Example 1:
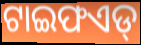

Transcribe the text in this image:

ଟାଇଫଏଡ୍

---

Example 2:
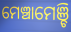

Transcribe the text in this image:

ମେଞ୍ଚାମେଞ୍ଚି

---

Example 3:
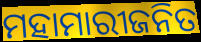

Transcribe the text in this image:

ମହାମାରୀଜନିତ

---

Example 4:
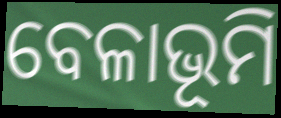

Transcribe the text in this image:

ବେଳାଭୂମି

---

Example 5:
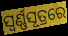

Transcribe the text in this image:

ସ୍ୱର୍ଣ୍ଣସୂତ୍ରରେ